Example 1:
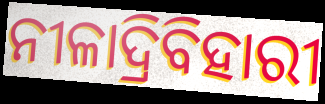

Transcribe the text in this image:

ନୀଳାଦ୍ରିବିହାରୀ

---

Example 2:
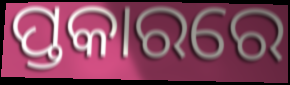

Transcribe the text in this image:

ପ୍ତକାରରେ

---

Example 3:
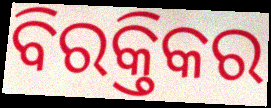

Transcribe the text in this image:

ବିରକ୍ତିକର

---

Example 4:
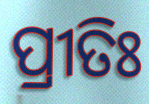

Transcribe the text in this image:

ପ୍ରୀତିଃ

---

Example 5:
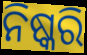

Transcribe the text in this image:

ନିଷ୍କରି